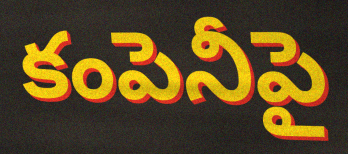
కంపెనీపై